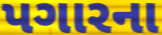
પગારના